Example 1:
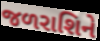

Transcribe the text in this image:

જળરાશિને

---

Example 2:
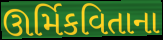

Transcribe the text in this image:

ઊર્મિકવિતાના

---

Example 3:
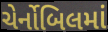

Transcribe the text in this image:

ચેર્નોબિલમાં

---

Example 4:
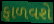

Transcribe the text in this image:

ફાળવશે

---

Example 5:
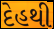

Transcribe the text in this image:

દેહથી